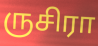
ருசிரா